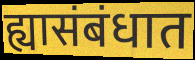
ह्यासंबंधात